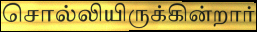
சொல்லியிருக்கின்றார்